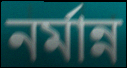
নর্মান্ন